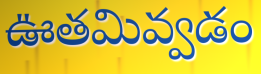
ఊతమివ్వడం